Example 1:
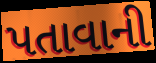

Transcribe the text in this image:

પતાવાની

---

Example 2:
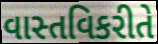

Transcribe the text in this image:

વાસ્તવિકરીતે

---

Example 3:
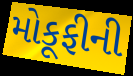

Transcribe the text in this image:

મોકૂફીની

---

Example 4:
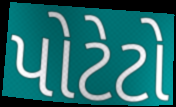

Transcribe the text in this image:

પોટેટો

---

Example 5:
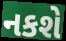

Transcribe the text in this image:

નકશે